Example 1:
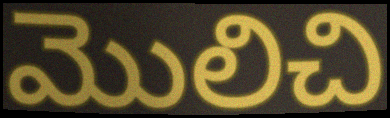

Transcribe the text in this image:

మొలిచి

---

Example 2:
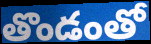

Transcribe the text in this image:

తొండంతో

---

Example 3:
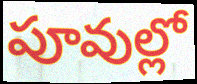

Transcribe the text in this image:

పూవుల్లో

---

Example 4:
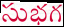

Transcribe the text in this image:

సుభగ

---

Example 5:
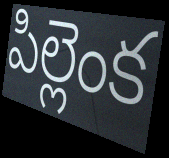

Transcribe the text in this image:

పిల్లెంక